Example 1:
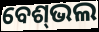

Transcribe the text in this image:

ବେଶ୍‌ଭଲ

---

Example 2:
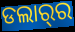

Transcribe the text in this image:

ଡଲାର୍‌ର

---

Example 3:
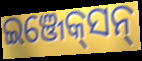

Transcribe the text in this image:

ଇଞ୍ଜେକ୍‍ସନ୍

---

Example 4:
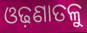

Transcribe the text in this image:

ଓଢ଼ଣାତଳୁ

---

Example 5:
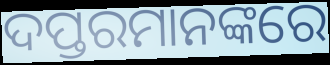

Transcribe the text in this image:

ଦପ୍ତରମାନଙ୍କରେ